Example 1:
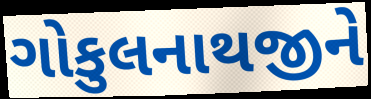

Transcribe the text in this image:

ગોકુલનાથજીને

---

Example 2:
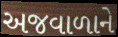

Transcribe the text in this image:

અજવાળાને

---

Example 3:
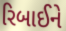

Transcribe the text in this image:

રિબાઈને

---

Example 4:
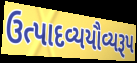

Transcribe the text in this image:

ઉત્પાદવ્યયૌવ્યરૂપ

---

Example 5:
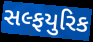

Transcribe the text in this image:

સલ્ફયુરિક